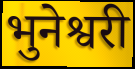
भुनेश्वरी